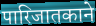
पारिजातकाने